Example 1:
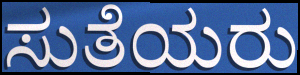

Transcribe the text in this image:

ಸುತೆಯರು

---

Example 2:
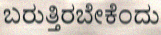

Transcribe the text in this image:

ಬರುತ್ತಿರಬೇಕೆಂದು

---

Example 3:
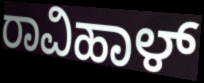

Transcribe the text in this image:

ರಾವಿಹಾಳ್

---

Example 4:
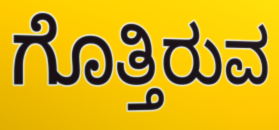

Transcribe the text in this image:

ಗೊತ್ತಿರುವ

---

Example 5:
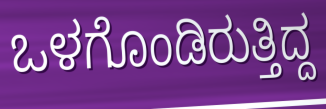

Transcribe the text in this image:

ಒಳಗೊಂಡಿರುತ್ತಿದ್ದ